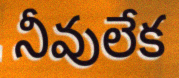
నీవులేక